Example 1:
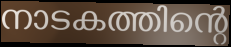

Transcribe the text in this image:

നാടകത്തിന്റെ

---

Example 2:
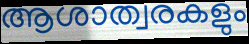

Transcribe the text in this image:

ആശാത്വരകളും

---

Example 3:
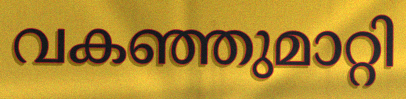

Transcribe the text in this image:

വകഞ്ഞുമാറ്റി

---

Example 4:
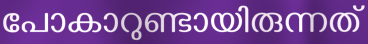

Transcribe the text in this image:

പോകാറുണ്ടായിരുന്നത്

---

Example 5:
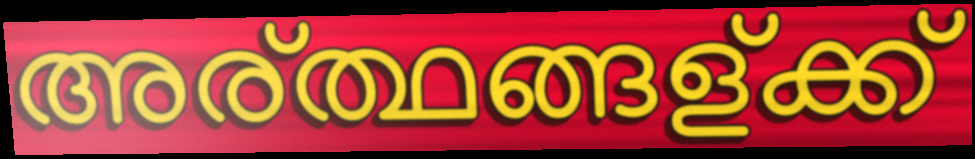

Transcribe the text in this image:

അര്ത്ഥങ്ങള്ക്ക്